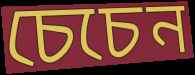
চেচেন